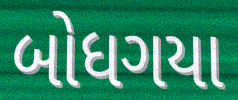
બોધગયા